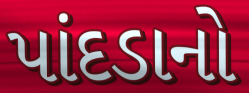
પાંદડાનો